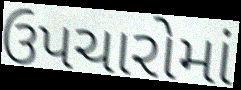
ઉપચારોમાં